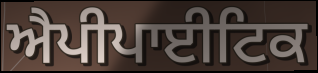
ਐਪੀਪਾਈਟਿਕ